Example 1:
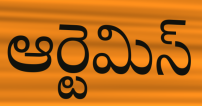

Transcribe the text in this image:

ఆర్టెమిస్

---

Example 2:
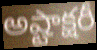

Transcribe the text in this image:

అష్టాక్షరీ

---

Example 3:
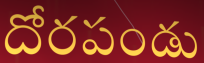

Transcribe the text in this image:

దోరపండు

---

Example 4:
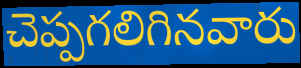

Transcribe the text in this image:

చెప్పగలిగినవారు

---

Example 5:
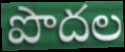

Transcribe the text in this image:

పొదల